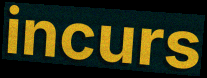
incurs